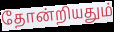
தோன்றியதும்